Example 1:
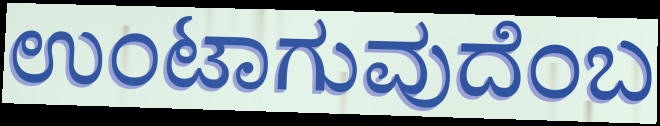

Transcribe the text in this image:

ಉಂಟಾಗುವುದೆಂಬ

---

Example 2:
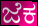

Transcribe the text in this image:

ಜೆಕ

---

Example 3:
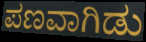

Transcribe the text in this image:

ಪಣವಾಗಿಡು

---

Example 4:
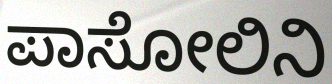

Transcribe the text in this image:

ಪಾಸೋಲಿನಿ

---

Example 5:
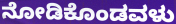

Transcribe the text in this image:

ನೋಡಿಕೊಂಡವಳು